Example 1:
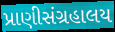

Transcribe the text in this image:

પ્રાણીસંગ્રહાલય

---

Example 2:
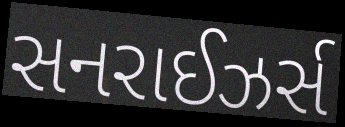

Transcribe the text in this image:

સનરાઈઝર્સ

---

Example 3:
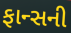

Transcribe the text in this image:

ફાન્સની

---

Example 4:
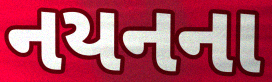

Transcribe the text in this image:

નયનના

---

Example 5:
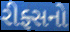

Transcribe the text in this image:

રીફ્સનો